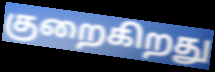
குறைகிறது